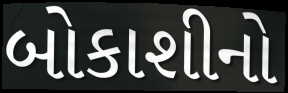
બોકાશીનો